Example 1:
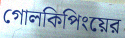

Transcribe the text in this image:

গোলকিপিংয়ের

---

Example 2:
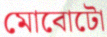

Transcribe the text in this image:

মোবোটো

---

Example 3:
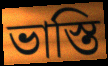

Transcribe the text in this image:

ভাস্তি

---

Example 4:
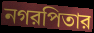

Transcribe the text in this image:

নগরপিতার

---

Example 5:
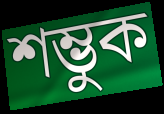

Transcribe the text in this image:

শম্ভুক